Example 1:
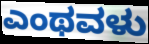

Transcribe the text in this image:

ಎಂಥವಳು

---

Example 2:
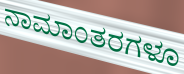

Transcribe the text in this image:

ನಾಮಾಂತರಗಳೂ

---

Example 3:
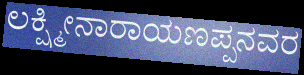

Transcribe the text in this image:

ಲಕ್ಷ್ಮೀನಾರಾಯಣಪ್ಪನವರ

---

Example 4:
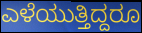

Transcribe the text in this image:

ಎಳೆಯುತ್ತಿದ್ದರೂ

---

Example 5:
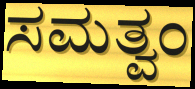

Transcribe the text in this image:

ಸಮತ್ವಂ